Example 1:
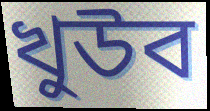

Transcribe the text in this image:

খুউব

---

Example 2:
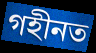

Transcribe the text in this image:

গহীনত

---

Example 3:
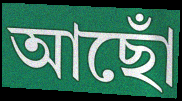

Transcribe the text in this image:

আছোঁ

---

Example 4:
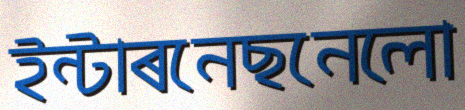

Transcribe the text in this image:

ইন্টাৰনেছনেলো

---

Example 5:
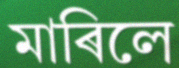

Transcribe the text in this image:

মাৰিলে